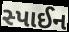
સ્પાઈન